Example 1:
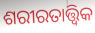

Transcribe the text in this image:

ଶରୀରତାତ୍ତ୍ଵିକ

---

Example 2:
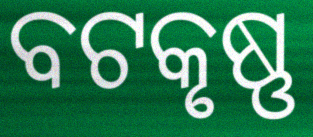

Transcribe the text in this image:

ବଟକୃଷ୍ଣ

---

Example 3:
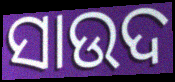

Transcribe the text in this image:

ସାଉଦ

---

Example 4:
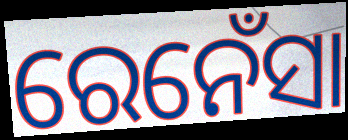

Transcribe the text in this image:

ରେନେଁସା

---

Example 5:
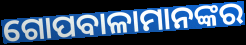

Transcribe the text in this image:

ଗୋପବାଳାମାନଙ୍କର